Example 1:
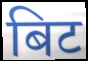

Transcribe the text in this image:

बिट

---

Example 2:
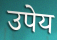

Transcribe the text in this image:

उपेय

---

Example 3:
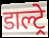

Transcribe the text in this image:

डाल्ट्रे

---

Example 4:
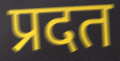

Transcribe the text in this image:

प्रदत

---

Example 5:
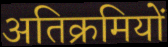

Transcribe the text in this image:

अतिक्रमियों